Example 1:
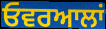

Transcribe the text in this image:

ਓਵਰਆਲਾਂ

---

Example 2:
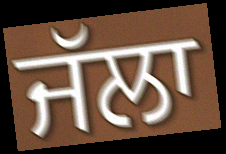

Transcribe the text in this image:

ਜੱਲਾ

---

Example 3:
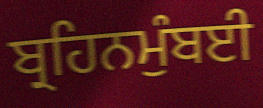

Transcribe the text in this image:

ਬ੍ਰਹਿਨਮੁੰਬਈ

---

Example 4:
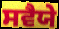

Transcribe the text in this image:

ਸਵੈਯੇ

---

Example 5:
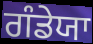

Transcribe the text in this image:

ਗੰਡੇਯਾ